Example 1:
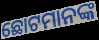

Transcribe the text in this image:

ଛୋଟମାନଙ୍କ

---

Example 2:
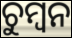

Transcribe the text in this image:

ଚୁମ୍ୱନ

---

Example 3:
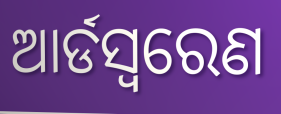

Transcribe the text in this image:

ଆର୍ଡସ୍ଵରେଣ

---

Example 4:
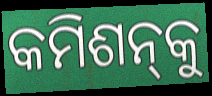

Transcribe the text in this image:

କମିଶନ୍‌କୁ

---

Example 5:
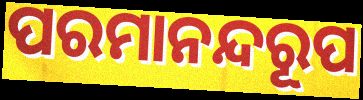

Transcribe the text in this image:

ପରମାନନ୍ଦରୂପ